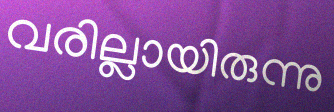
വരില്ലായിരുന്നു